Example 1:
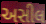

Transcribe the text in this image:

અસીલ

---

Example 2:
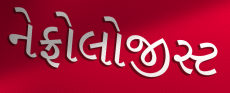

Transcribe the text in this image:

નેફ્રોલોજીસ્ટ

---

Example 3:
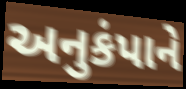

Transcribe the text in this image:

અનુકંપાને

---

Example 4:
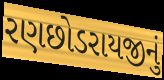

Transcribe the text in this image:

રણછોડરાયજીનું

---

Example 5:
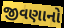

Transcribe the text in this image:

જીવણાનો